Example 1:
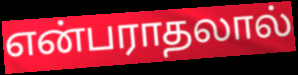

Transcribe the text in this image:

என்பராதலால்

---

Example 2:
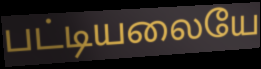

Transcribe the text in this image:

பட்டியலையே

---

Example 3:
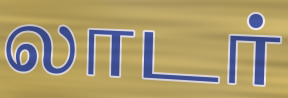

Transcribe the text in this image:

லாடர்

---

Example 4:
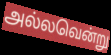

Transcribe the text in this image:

அல்லவென்று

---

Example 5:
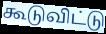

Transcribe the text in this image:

கூடுவிட்டு